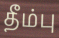
தீம்பு